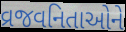
વ્રજવનિતાઓને